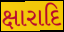
ક્ષારાદિ